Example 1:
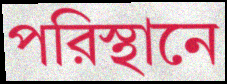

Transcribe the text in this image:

পরিস্থানে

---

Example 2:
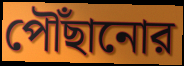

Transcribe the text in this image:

পৌঁছানোর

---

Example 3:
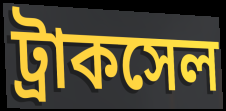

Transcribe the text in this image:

ট্রাকসেল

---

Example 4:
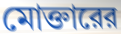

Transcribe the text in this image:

মোক্তারের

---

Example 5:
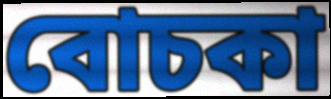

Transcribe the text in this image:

বোচকা